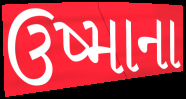
ઉષ્માના